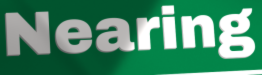
Nearing